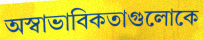
অস্বাভাবিকতাগুলোকে